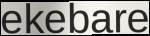
ekebare